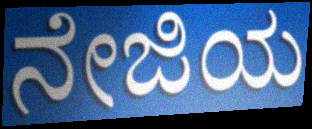
ನೇಜಿಯ